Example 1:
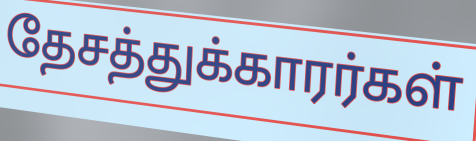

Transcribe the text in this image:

தேசத்துக்காரர்கள்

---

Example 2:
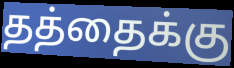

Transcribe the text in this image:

தத்தைக்கு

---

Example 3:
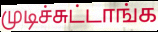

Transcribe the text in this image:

முடிச்சுட்டாங்க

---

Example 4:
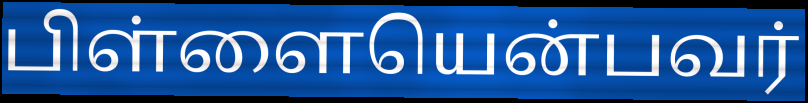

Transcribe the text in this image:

பிள்ளையென்பவர்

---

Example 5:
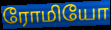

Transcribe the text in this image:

ரோமியோ